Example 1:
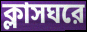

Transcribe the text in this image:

ক্লাসঘরে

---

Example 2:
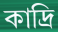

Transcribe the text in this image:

কাদ্রি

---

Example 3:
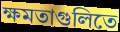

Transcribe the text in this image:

ক্ষমতাগুলিতে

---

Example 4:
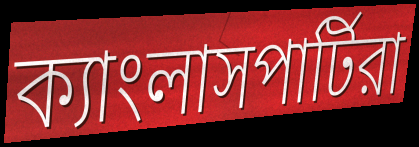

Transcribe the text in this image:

ক্যাংলাসপার্টিরা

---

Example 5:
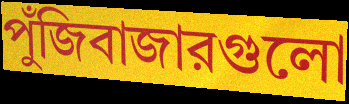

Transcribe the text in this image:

পুঁজিবাজারগুলো